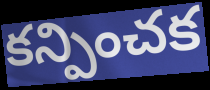
కన్పించక